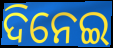
ଦିନେଇ